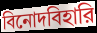
বিনোদবিহারি